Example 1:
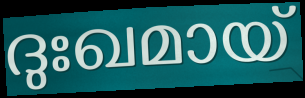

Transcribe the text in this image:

ദുഃഖമായ്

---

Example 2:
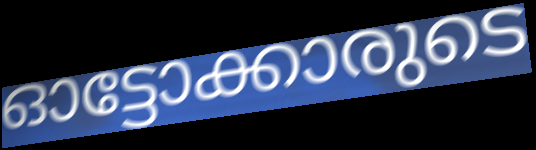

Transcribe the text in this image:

ഓട്ടോക്കാരുടെ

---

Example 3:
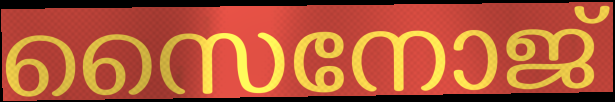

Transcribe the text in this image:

സൈനോജ്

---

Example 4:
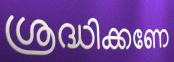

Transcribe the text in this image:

ശ്രദ്ധിക്കണേ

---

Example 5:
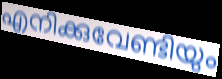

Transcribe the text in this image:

എനിക്കുവേണ്ടിയും